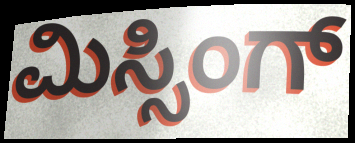
ಮಿಸ್ಸಿಂಗ್